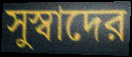
সুস্বাদের